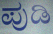
ಪುಡಿ